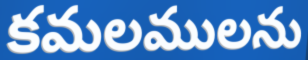
కమలములను